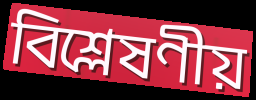
বিশ্লেষণীয়